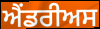
ਐਂਡਰੀਅਸ